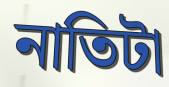
নাতিটা